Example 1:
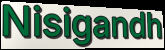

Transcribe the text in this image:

Nisigandh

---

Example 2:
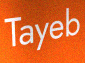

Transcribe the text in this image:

Tayeb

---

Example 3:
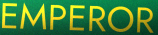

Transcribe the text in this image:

EMPEROR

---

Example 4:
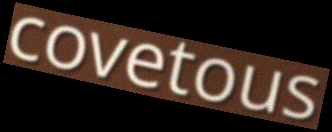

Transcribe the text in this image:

covetous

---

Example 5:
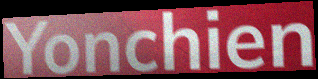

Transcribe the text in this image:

Yonchien